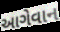
આગેવાન